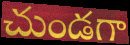
చుండగా